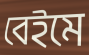
বেইমে